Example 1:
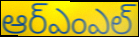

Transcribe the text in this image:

ఆర్ఎంఎల్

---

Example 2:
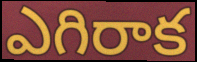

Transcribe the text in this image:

ఎగిరాక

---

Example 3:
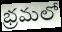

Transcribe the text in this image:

భ్రమలో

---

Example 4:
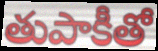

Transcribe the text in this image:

తుపాకీతో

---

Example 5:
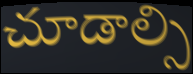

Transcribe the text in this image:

చూడాల్సి